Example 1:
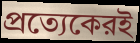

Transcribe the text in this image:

প্রত্যেকেরই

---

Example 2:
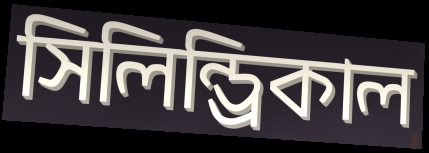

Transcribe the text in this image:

সিলিন্ড্রিকাল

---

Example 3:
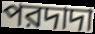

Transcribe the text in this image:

পরদাদা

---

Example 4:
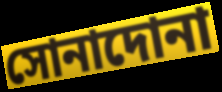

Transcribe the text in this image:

সোনাদোনা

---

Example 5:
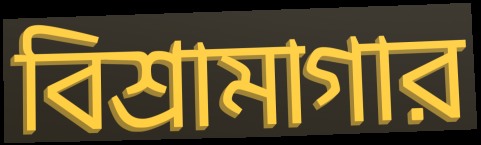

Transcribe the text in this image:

বিশ্রামাগার